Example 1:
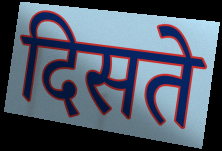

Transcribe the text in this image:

दिसते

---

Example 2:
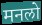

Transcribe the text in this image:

मनलो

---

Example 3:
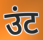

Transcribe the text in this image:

उंट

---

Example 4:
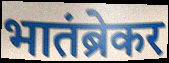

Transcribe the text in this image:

भातंब्रेकर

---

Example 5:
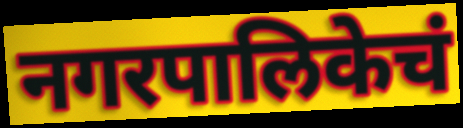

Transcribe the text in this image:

नगरपालिकेचं